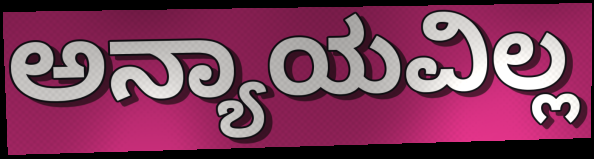
ಅನ್ಯಾಯವಿಲ್ಲ